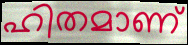
ഹിതമാണ്